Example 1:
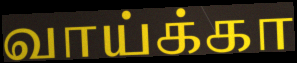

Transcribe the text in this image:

வாய்க்கா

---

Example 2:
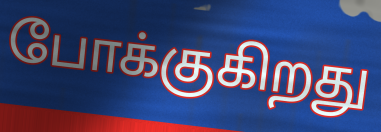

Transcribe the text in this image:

போக்குகிறது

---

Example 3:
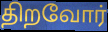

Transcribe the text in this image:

திறவோர்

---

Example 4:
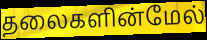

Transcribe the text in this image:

தலைகளின்மேல்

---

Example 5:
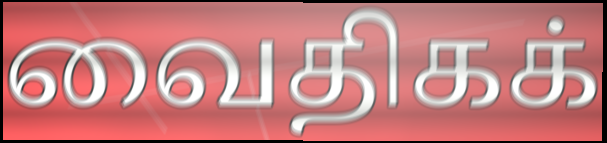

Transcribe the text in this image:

வைதிகக்